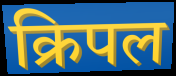
क्रिपल